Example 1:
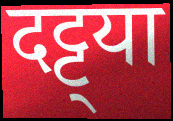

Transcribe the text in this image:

दट्ट्या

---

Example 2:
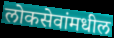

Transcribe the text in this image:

लोकसेवांमधील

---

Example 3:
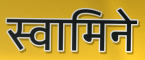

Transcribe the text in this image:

स्वामिने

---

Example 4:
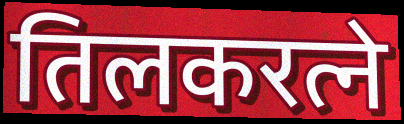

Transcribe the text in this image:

तिलकरत्ने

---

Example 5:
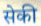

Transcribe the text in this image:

सेकी